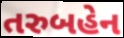
તરુબહેન